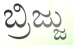
ಬ್ರಿಜ್ಜು